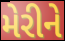
મેરીને